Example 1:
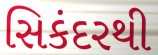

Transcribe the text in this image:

સિકંદરથી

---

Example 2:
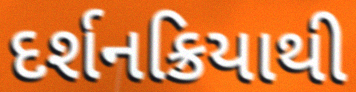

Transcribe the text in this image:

દર્શનક્રિયાથી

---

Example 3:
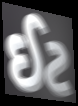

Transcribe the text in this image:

ઈટ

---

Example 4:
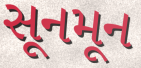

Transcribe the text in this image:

સૂનમૂન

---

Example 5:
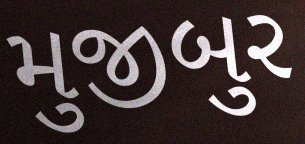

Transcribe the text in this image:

મુજીબુર